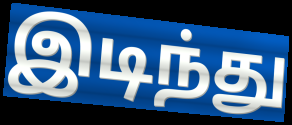
இடிந்து